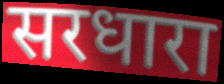
सरधारा